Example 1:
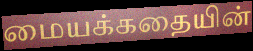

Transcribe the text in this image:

மையக்கதையின்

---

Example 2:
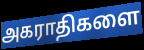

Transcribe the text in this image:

அகராதிகளை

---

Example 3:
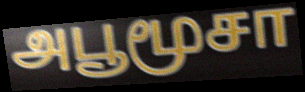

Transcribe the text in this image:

அபூமூசா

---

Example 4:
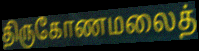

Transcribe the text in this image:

திருகோணமலைத்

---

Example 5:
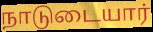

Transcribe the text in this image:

நாடுடையார்